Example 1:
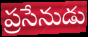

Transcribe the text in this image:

ప్రసేనుడు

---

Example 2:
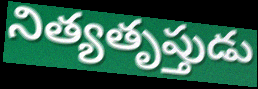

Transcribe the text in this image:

నిత్యతృప్తుడు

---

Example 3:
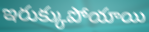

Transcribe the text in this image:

ఇరుక్కుపోయాయి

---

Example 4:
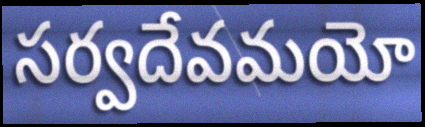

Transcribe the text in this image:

సర్వదేవమయో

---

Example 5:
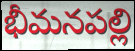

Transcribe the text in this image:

భీమనపల్లి